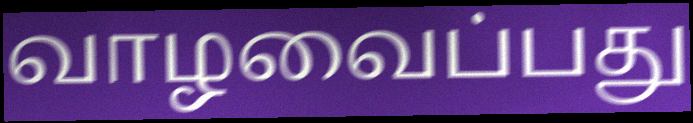
வாழவைப்பது